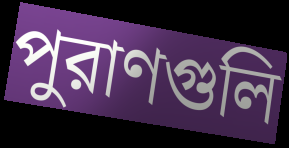
পুরাণগুলি